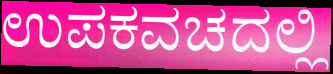
ಉಪಕವಚದಲ್ಲಿ